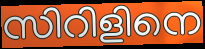
സിറിളിനെ